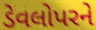
ડેવલોપરને